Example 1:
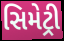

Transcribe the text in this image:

સિમેટ્રી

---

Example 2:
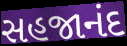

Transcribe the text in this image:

સહજાનંદ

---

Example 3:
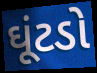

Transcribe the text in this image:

ઘૂંટડો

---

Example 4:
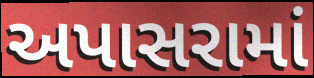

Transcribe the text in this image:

અપાસરામાં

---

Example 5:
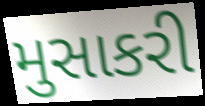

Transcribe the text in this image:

મુસાકરી